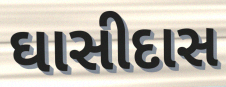
ઘાસીદાસ